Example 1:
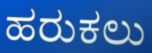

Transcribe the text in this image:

ಹರುಕಲು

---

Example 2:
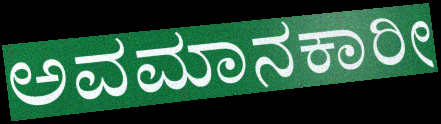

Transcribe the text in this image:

ಅವಮಾನಕಾರೀ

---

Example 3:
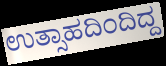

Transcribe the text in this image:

ಉತ್ಸಾಹದಿಂದಿದ್ದ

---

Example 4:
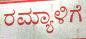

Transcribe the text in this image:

ರಮ್ಯಾಳಿಗೆ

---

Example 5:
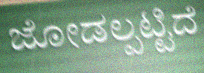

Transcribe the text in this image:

ಜೋಡಲ್ಪಟ್ಟಿದೆ